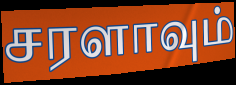
சரளாவும்